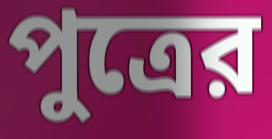
পুত্রের